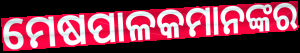
ମେଷପାଳକମାନଙ୍କର